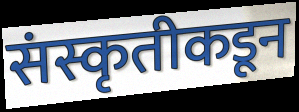
संस्कृतीकडून